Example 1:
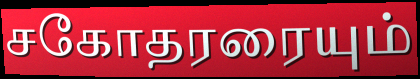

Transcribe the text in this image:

சகோதரரையும்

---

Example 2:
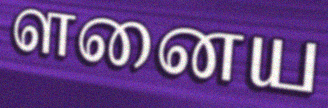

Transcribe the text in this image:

ளனைய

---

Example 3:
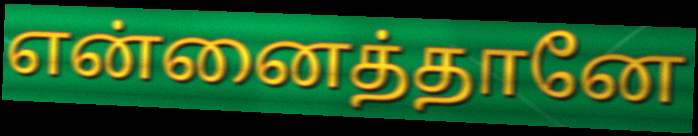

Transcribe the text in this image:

என்னைத்தானே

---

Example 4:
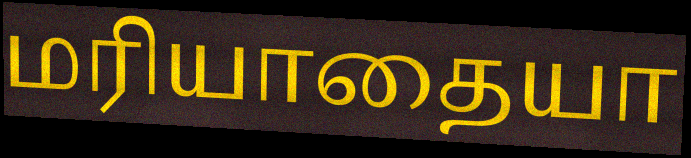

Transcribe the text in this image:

மரியாதையா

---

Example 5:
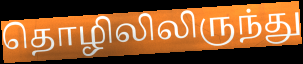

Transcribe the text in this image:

தொழிலிலிருந்து